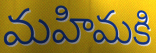
మహిమకి